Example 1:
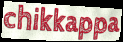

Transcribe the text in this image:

chikkappa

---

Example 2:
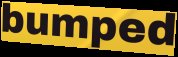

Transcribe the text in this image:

bumped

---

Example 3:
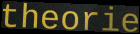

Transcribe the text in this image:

theorie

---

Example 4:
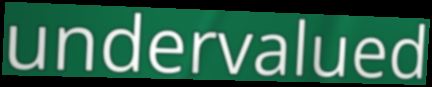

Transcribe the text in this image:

undervalued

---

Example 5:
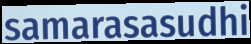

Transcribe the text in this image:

samarasasudhi